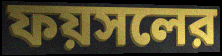
ফয়সলের